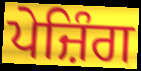
ਪੇਜ਼ਿੰਗ